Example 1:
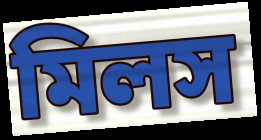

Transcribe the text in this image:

মিলস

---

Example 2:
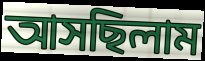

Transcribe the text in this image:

আসছিলাম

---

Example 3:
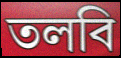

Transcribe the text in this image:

তলবি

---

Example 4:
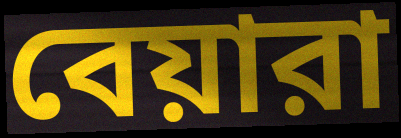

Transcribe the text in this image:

বেয়ারা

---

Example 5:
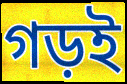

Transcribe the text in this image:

গড়ই